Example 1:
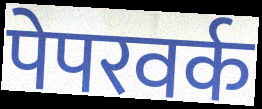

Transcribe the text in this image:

पेपरवर्क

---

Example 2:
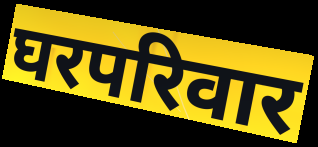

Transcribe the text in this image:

घरपरिवार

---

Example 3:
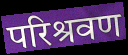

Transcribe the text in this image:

परिश्रवण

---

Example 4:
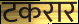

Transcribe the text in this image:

टकरार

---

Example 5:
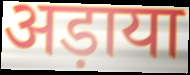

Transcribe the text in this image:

अड़ाया